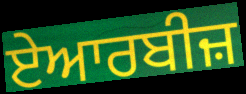
ਏਆਰਬੀਜ਼